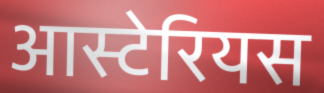
आस्टेरियस